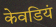
केवडियं